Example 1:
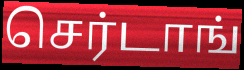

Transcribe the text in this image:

செர்டாங்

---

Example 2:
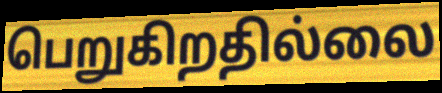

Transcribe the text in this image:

பெறுகிறதில்லை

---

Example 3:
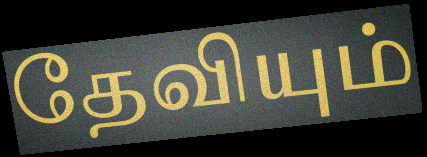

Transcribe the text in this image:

தேவியும்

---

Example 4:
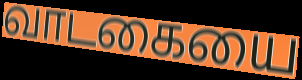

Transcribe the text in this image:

வாடகையை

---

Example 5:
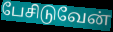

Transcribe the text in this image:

பேசிடுவேன்